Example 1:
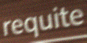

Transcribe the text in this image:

requite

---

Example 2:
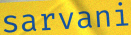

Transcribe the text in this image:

sarvani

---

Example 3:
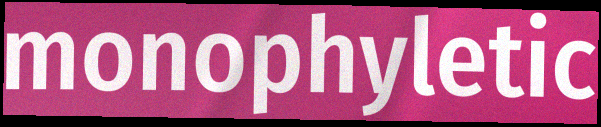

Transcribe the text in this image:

monophyletic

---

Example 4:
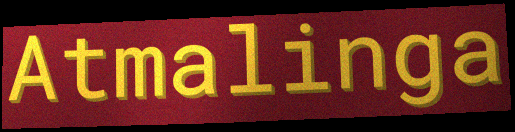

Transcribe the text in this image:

Atmalinga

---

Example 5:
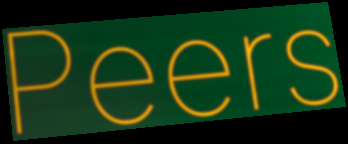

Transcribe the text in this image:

Peers